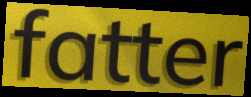
fatter